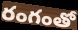
రంగంతో